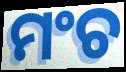
ମଂଚ